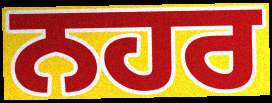
ਨਹਰ